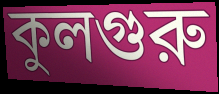
কুলগুরু